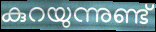
കുറയുന്നുണ്ട്